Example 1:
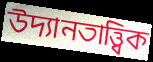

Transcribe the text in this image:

উদ্যানতাত্ত্বিক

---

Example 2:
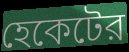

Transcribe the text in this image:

হেকেটের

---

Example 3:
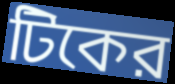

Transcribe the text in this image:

টিকের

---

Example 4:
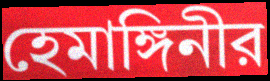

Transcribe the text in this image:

হেমাঙ্গিনীর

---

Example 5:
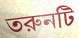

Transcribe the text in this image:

তরুনটি